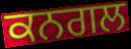
ਕਨਗਲ